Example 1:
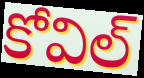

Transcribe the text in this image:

కోవిల్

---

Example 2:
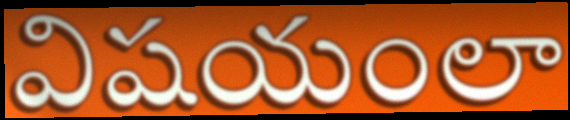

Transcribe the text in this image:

విషయంలా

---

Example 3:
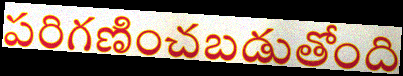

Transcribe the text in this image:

పరిగణించబడుతోంది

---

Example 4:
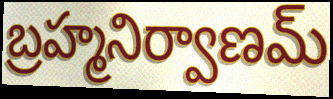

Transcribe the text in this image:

బ్రహ్మనిర్వాణమ్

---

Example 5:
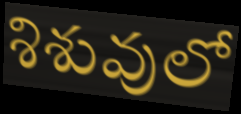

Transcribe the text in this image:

శిశువులో